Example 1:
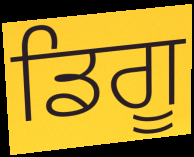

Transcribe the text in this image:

ਡਿਗੂ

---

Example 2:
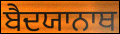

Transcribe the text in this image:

ਬੈਦਯਾਨਾਥ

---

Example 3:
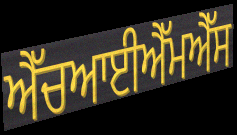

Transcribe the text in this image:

ਐੱਚਆਈਐੱਮਐੱਸ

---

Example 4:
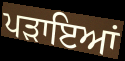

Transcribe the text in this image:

ਪੜਾਇਆਂ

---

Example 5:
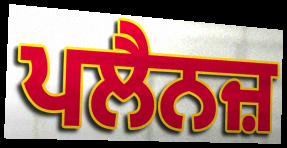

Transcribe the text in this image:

ਪਲੈਨਜ਼